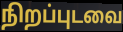
நிறப்புடவை